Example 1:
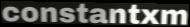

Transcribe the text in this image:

constantxm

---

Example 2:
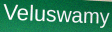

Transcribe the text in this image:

Veluswamy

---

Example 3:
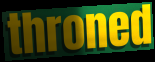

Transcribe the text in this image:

throned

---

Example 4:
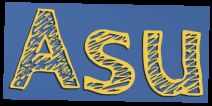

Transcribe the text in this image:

Asu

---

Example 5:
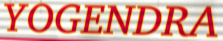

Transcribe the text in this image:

YOGENDRA